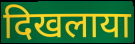
दिखलाया